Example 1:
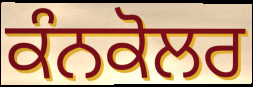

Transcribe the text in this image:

ਕੰਨਕੋਲਰ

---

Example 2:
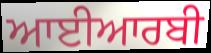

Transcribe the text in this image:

ਆਈਆਰਬੀ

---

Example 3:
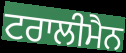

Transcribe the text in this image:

ਟਰਾਲੀਮੈਨ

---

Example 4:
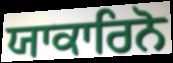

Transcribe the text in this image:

ਯਾਕਾਰਿਨੋ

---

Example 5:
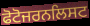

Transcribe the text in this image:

ਫੋਟੋਜਰਨਲਿਸਟ